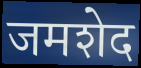
जमशेद